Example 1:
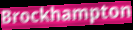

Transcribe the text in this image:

Brockhampton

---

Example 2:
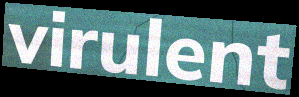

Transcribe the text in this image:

virulent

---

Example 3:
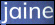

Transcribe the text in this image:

jaine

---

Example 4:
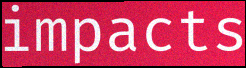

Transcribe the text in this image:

impacts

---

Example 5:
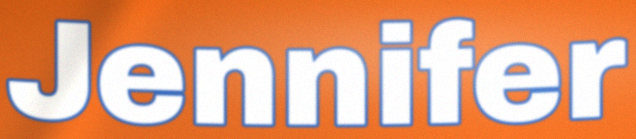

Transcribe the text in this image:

Jennifer